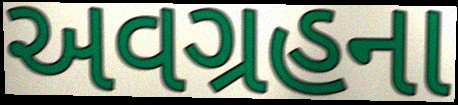
અવગ્રહના